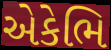
એકેભિ